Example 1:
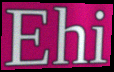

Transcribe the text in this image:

Ehi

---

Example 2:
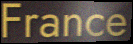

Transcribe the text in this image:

France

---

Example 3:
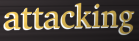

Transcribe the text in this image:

attacking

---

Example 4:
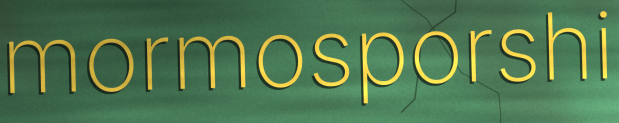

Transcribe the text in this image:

mormosporshi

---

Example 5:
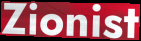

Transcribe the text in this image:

Zionist